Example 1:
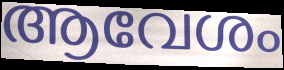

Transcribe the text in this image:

ആവേശം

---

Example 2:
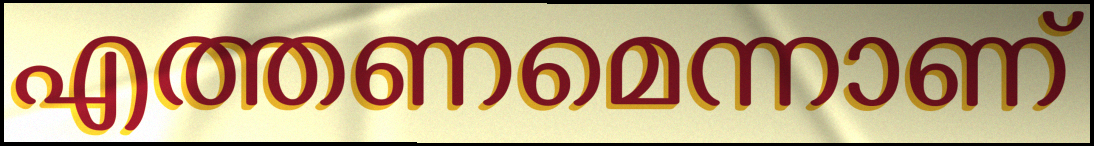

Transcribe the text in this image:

എത്തണമെന്നാണ്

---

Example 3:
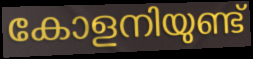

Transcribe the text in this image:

കോളനിയുണ്ട്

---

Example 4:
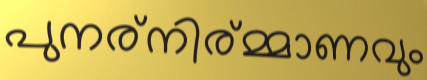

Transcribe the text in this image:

പുനര്നിര്മ്മാണവും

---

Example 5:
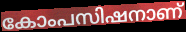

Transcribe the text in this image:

കോംപസിഷനാണ്